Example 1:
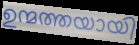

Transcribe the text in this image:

ഉന്മത്തയായി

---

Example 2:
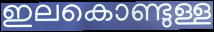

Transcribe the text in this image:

ഇലകൊണ്ടുള്ള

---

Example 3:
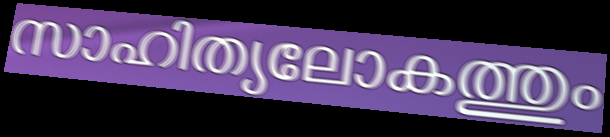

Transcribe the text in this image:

സാഹിത്യലോകത്തും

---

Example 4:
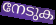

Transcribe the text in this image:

നേടുക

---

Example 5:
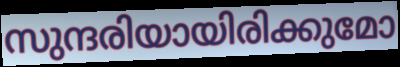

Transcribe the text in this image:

സുന്ദരിയായിരിക്കുമോ